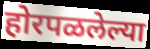
होरपळलेल्या